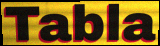
Tabla